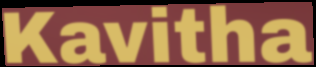
Kavitha